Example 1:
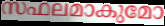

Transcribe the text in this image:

സഫലമാകുമോ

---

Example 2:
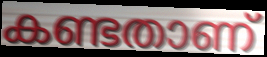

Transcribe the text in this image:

കണ്ടതാണ്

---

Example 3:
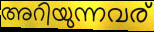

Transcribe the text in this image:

അറിയുന്നവര്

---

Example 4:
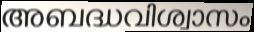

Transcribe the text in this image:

അബദ്ധവിശ്വാസം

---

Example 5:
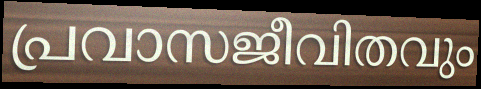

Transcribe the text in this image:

പ്രവാസജീവിതവും